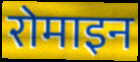
रोमाइन